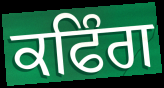
ਕਫਿੰਗ